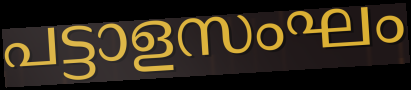
പട്ടാളസംഘം